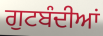
ਗੁਟਬੰਦੀਆਂ